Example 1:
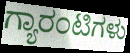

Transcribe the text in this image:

ಗ್ಯಾರಂಟಿಗಳು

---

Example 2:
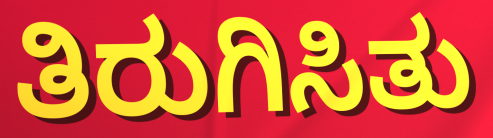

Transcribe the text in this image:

ತಿರುಗಿಸಿತು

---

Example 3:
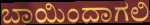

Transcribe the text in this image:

ಬಾಯಿಂದಾಗಲಿ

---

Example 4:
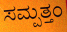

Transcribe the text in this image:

ಸಮ್ಪತ್ತಂ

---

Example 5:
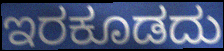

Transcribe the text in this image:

ಇರಕೂಡದು